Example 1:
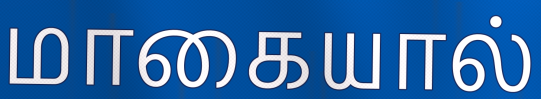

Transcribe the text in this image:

மாகையால்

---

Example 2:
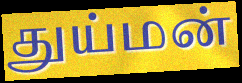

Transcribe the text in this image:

துய்மன்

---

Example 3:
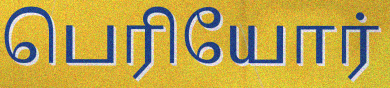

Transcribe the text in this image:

பெரியோர்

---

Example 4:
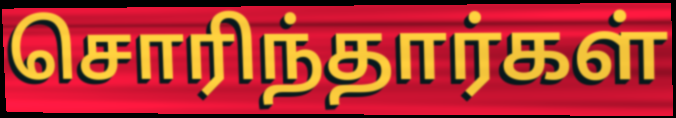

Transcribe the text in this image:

சொரிந்தார்கள்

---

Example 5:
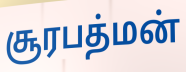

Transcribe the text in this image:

சூரபத்மன்